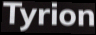
Tyrion